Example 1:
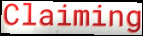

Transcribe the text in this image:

Claiming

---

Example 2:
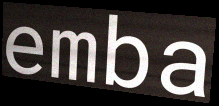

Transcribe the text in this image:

emba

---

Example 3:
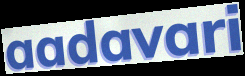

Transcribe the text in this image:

aadavari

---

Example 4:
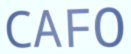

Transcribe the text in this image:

CAFO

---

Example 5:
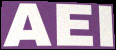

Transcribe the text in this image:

AEI